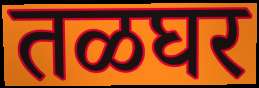
तळघर